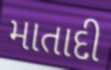
માતાદી